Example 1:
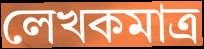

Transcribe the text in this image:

লেখকমাত্র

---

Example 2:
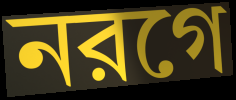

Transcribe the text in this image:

নরগে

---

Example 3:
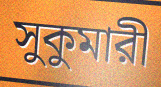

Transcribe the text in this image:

সুকুমারী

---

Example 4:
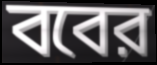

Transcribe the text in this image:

ববের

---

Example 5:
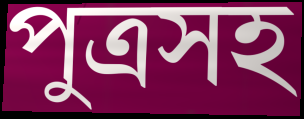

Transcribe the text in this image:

পুত্রসহ